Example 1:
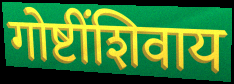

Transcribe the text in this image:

गोष्टींशिवाय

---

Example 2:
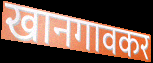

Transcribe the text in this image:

खानगावकर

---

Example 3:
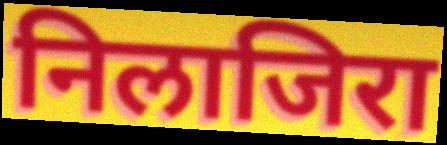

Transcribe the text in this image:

निलाजिरा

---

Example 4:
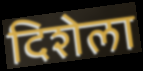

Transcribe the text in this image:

दिशेला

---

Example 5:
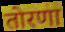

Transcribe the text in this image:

तोरणा